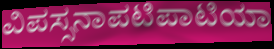
ವಿಪಸ್ಸನಾಪಟಿಪಾಟಿಯಾ